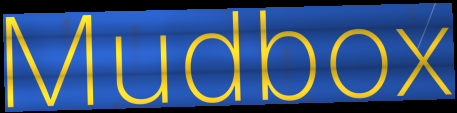
Mudbox